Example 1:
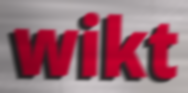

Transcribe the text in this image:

wikt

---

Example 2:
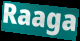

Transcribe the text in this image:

Raaga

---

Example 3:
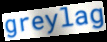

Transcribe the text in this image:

greylag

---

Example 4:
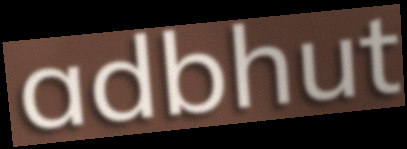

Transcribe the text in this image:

adbhut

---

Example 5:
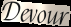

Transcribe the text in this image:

Devour